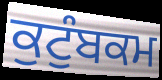
ਕੁਟੁੰਬਕਮ